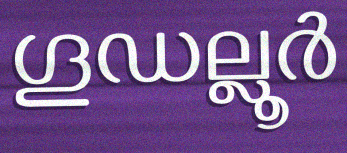
ഗൂഡല്ലൂർ